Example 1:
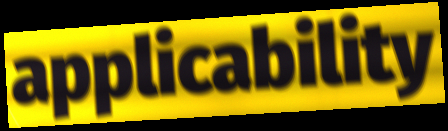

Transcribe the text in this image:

applicability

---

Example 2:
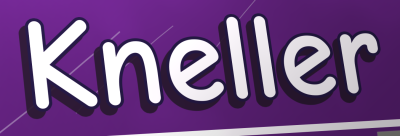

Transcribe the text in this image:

Kneller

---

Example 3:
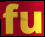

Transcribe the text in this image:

fu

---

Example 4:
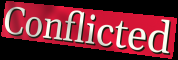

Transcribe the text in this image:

Conflicted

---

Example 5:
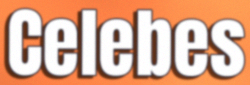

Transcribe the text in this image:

Celebes